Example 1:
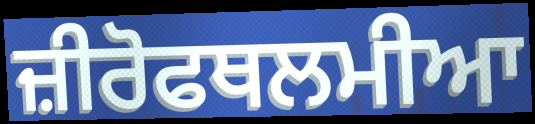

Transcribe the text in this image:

ਜ਼ੀਰੋਫਥਲਮੀਆ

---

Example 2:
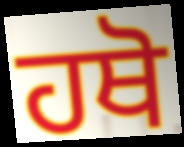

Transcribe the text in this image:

ਹਥੋ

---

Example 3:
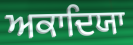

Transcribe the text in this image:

ਅਕਾਦਿਯਾ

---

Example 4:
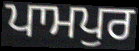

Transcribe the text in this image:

ਪਾਮਪੁਰ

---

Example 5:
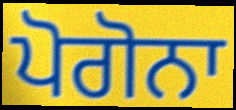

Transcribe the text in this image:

ਪੋਗੋਨਾ